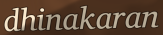
dhinakaran